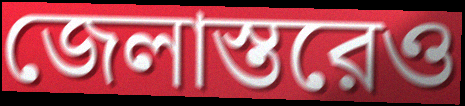
জেলাস্তরেও